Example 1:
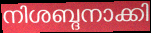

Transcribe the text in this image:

നിശബ്ദനാക്കി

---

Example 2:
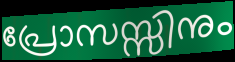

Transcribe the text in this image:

പ്രോസസ്സിനും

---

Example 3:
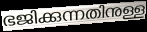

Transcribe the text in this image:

ഭജിക്കുന്നതിനുള്ള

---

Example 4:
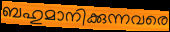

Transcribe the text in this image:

ബഹുമാനിക്കുന്നവരെ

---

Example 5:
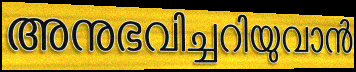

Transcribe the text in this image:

അനുഭവിച്ചറിയുവാൻ